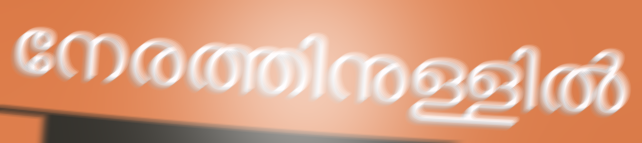
നേരത്തിനുള്ളിൽ